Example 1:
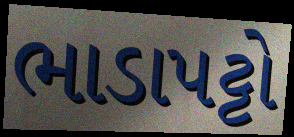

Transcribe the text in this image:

ભાડાપટ્ટો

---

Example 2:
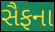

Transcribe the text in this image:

સૈફના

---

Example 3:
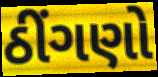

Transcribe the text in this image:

ઠીંગણો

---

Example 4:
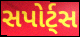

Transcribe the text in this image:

સપોર્ટ્સ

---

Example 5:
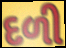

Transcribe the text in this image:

દળી